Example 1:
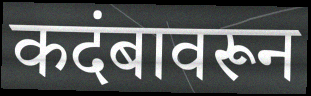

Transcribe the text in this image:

कदंबावरून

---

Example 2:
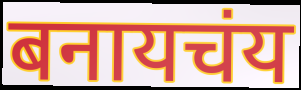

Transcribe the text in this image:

बनायचंय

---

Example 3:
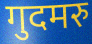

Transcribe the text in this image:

गुदमरु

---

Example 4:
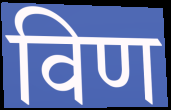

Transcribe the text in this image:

विण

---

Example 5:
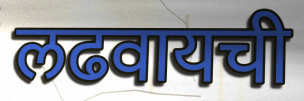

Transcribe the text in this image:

लढवायची